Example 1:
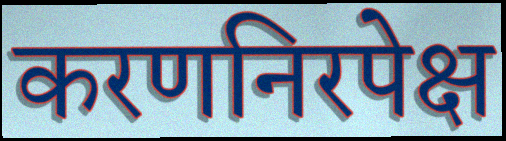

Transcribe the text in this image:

करणनिरपेक्ष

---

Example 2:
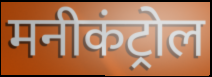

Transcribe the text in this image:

मनीकंट्रोल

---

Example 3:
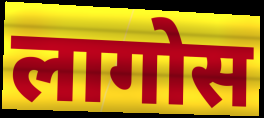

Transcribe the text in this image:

लागोस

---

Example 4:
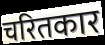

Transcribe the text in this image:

चरितकार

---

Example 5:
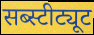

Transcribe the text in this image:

सब्स्टीट्यूट